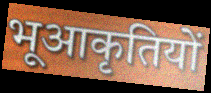
भूआकृतियों